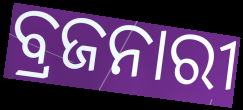
ବ୍ରଜନାରୀ